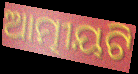
ଆତ୍ମୀୟଟି